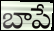
బాపే